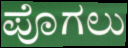
ಪೊಗಲು